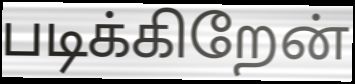
படிக்கிறேன்